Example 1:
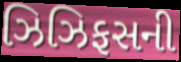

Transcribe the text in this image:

ઝિઝિફસની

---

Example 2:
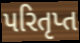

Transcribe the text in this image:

પરિતૃપ્ત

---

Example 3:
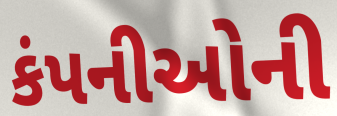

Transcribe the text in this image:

કંપનીઓની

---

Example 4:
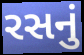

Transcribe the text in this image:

રસનું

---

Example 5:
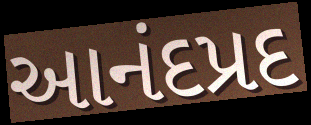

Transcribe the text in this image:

આનંદપ્રદ